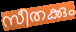
സീതക്കും